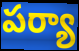
పర్యా